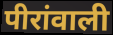
पीरांवाली